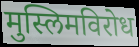
मुस्लिमविरोध